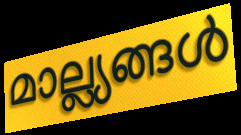
മാല്ല്യങ്ങൾ